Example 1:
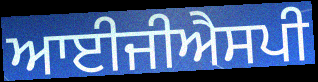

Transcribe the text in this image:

ਆਈਜੀਐਸਪੀ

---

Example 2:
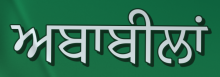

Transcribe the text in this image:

ਅਬਾਬੀਲਾਂ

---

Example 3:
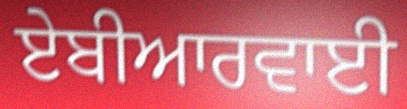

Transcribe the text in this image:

ਏਬੀਆਰਵਾਈ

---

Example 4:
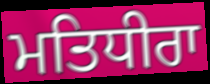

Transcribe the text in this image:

ਮਤਿਧੀਰਾ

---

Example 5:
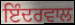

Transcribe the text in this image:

ਇੰਦਰਵਾਲ